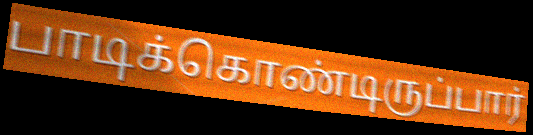
பாடிக்கொண்டிருப்பார்